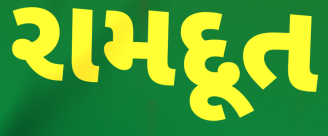
રામદૂત